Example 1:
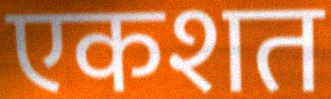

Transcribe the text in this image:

एकशत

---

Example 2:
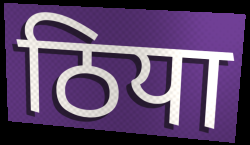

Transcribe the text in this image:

ठिया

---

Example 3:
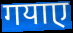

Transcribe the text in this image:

गयाए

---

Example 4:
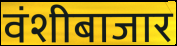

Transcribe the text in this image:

वंशीबाजार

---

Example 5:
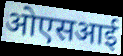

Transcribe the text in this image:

ओएसआई